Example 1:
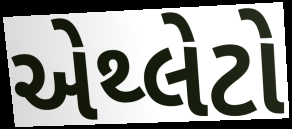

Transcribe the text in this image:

એથ્લેટો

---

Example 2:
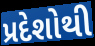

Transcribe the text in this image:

પ્રદેશોથી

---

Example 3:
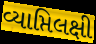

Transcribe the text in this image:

વ્યાપ્તિલક્ષી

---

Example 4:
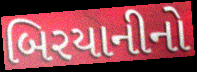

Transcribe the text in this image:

બિરયાનીનો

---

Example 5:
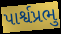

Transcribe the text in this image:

પાર્શ્વપ્રભુ